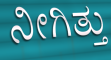
ನೀಗಿತ್ತು